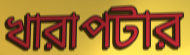
খারাপটার